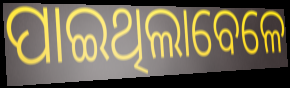
ପାଇଥିଲାବେଳେ